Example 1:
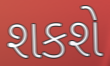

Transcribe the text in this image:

શકશે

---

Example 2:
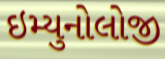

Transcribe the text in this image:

ઇમ્યુનોલોજી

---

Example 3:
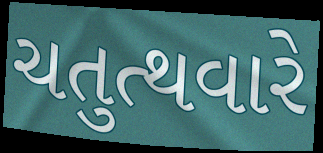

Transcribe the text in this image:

ચતુત્થવારે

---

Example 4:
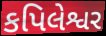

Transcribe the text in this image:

કપિલેશ્વર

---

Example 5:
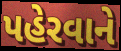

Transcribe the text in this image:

પહેરવાને